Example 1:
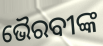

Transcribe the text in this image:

ଭୈରବୀଙ୍କ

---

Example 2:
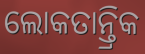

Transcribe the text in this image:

ଲୋକତାନ୍ତ୍ରିକ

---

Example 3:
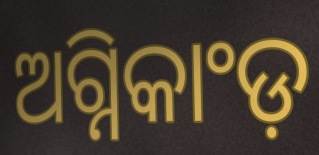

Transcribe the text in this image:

ଅଗ୍ନିକାଂଡ଼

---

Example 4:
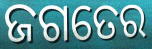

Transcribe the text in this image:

ଜଗତେର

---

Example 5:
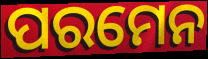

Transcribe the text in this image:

ପରମେନ